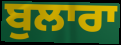
ਬੁਲਾਰਾ